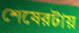
শেষেরটায়